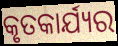
କୃତକାର୍ଯ୍ୟର